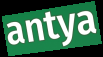
antya